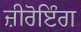
ਜ਼ੀਰੋਇੰਗ